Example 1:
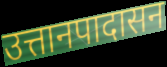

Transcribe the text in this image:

उत्तानपादासन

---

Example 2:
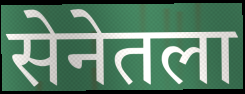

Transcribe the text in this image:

सेनेतला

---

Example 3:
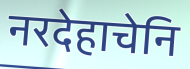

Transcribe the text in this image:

नरदेहाचेनि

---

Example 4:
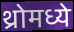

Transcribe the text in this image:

थ्रोमध्ये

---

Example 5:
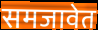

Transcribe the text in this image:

समजावेत